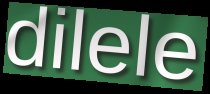
dilele